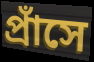
প্রাঁসে